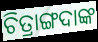
ଚିତ୍ରାଙ୍ଗଦାଙ୍କ